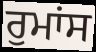
ਰੁਮਾਂਸ